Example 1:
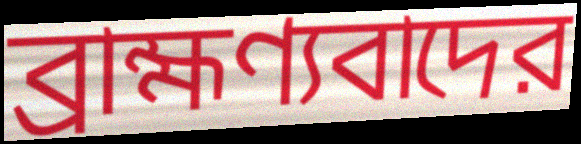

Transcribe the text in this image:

ব্রাহ্মণ্যবাদের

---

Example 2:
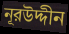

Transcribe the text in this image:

নূরউদ্দীন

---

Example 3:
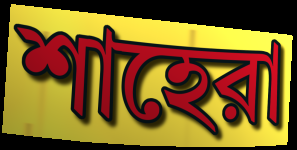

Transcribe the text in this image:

শাহেরা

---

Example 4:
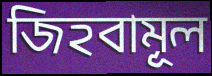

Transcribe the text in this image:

জিহবামূল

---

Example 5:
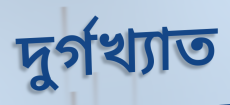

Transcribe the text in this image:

দুর্গখ্যাত